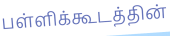
பள்ளிக்கூடத்தின்